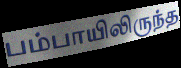
பம்பாயிலிருந்த